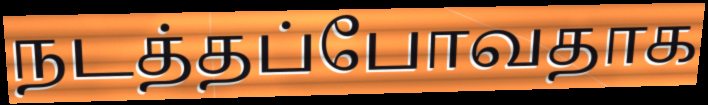
நடத்தப்போவதாக